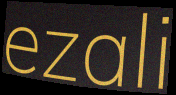
ezali